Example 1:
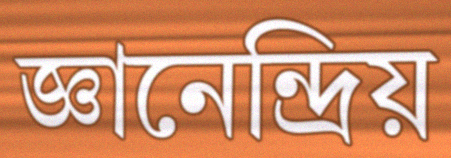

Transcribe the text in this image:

জ্ঞানেন্দ্ৰিয়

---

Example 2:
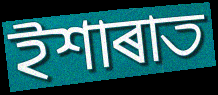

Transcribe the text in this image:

ইশাৰাত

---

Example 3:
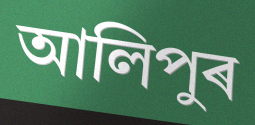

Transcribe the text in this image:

আলিপুৰ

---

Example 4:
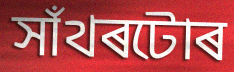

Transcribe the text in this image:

সাঁথৰটোৰ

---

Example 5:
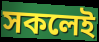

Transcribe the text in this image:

সকলেই